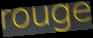
rouge